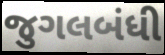
જુગલબંધી